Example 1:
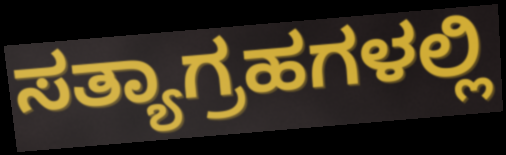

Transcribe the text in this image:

ಸತ್ಯಾಗ್ರಹಗಳಲ್ಲಿ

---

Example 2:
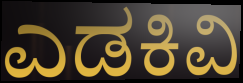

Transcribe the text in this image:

ಎಡಕಿವಿ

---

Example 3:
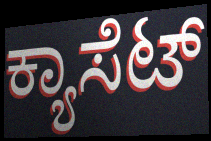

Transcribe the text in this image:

ಕ್ಯಾಸೆಟ್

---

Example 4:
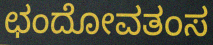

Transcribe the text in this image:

ಛಂದೋವತಂಸ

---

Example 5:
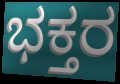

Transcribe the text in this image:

ಭಕ್ತರ